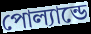
পোল্যান্ডে